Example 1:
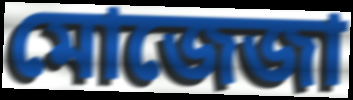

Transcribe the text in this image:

মোজেজা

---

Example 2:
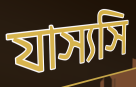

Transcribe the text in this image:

যাস্যসি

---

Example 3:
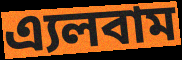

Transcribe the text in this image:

এ্যলবাম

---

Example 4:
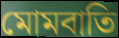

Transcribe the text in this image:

মোমবাতি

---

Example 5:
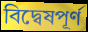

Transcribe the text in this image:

বিদ্বেষপূর্ণ